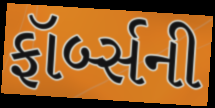
ફૉર્બ્સની